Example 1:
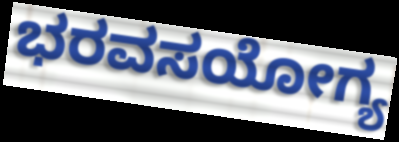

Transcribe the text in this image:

ಭರವಸಯೋಗ್ಯ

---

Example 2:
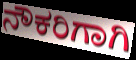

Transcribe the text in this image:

ನೌಕರಿಗಾಗಿ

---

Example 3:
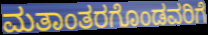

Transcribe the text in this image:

ಮತಾಂತರಗೊಂಡವರಿಗೆ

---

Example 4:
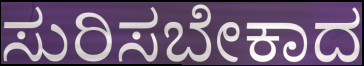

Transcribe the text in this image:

ಸುರಿಸಬೇಕಾದ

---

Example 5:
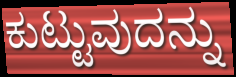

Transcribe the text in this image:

ಕುಟ್ಟುವುದನ್ನು